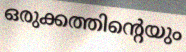
ഒരുക്കത്തിന്റെയും